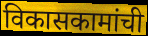
विकासकामांची